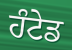
ਹੰਟੇਡ